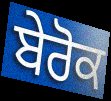
ਬੇਰੋਕ